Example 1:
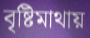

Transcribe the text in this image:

বৃষ্টিমাথায়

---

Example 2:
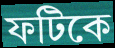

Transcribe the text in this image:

ফটিকে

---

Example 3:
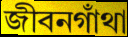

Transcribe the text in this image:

জীবনগাঁথা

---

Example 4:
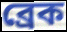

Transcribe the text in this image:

ব্রেক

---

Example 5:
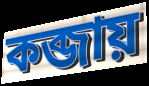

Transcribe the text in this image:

কব্জায়